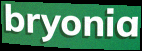
bryonia